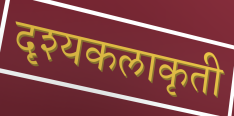
दृश्यकलाकृती